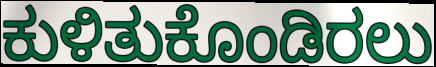
ಕುಳಿತುಕೊಂಡಿರಲು